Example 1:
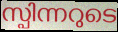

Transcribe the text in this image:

സ്പിന്നറുടെ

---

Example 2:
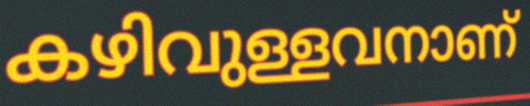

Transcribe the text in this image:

കഴിവുള്ളവനാണ്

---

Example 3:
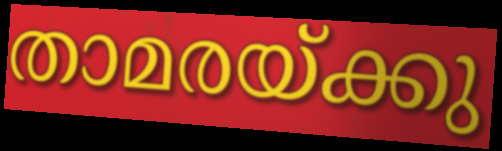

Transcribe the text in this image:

താമരയ്ക്കു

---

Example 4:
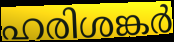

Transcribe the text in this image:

ഹരിശങ്കർ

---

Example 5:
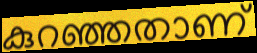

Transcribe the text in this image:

കുറഞ്ഞതാണ്